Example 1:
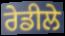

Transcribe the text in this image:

ਰੇਡੀਲੇ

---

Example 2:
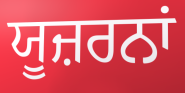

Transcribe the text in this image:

ਯੂਜ਼ਰਨਾਂ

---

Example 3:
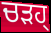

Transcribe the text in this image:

ਚੜਹ੍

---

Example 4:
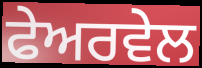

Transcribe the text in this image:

ਫੇਅਰਵੇਲ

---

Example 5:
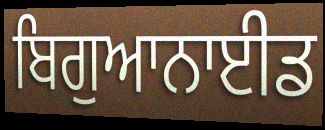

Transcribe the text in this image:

ਬਿਗੁਆਨਾਈਡ